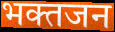
भक्तजन